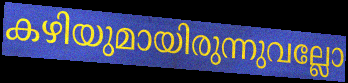
കഴിയുമായിരുന്നുവല്ലോ